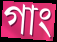
গাং